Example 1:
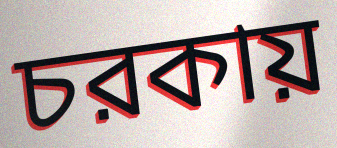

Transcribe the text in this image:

চরকায়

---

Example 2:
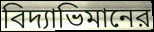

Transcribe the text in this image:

বিদ্যাভিমানের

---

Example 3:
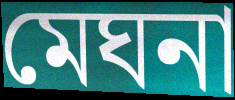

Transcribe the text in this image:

মেঘনা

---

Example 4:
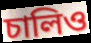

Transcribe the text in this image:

চালিও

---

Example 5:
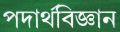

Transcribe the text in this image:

পদার্থবিজ্ঞান